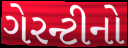
ગેરન્ટીનો